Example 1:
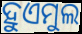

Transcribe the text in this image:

ହୁଏମୁଲ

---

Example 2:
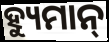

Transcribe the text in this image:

ହ୍ୟୁମାନ୍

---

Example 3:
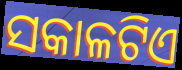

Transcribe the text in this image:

ସକାଳଟିଏ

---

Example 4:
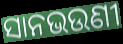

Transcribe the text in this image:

ସାନଭଉଣୀ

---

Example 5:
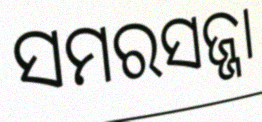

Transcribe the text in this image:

ସମରସଜ୍ଜା